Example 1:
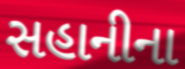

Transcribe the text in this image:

સહાનીના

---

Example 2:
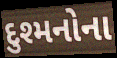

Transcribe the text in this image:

દુશ્મનોના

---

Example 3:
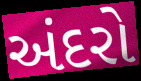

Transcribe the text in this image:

અંદરો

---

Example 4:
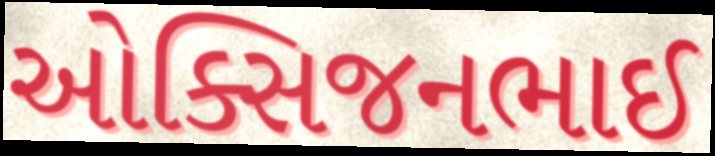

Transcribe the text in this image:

ઓક્સિજનભાઈ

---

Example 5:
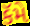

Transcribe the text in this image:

કૅમે